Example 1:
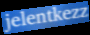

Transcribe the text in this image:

jelentkezz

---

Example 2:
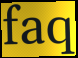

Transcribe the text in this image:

faq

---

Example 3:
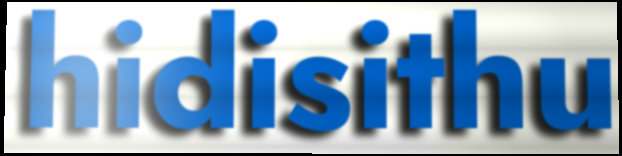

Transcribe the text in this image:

hidisithu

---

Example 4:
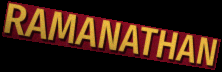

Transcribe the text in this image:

RAMANATHAN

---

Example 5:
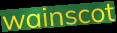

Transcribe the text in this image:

wainscot